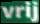
vrij